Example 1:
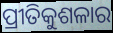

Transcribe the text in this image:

ପ୍ରୀତିକୁଶଳାର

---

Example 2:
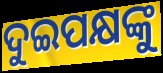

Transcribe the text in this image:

ଦୁଇପକ୍ଷଙ୍କୁ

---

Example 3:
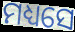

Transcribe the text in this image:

ମଧ୍ୟସେ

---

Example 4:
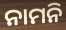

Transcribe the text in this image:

ନାମନି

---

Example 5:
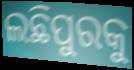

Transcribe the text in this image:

ଲଛିପୁରକୁ